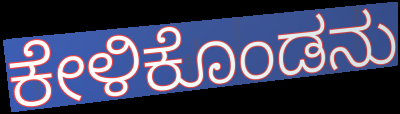
ಕೇಳಿಕೊಂಡನು